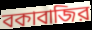
বকাবাজির